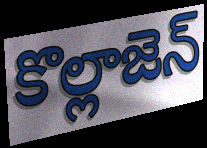
కొల్లాజెన్